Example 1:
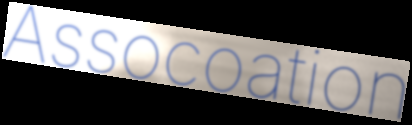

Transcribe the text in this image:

Assocoation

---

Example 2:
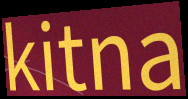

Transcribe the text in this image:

kitna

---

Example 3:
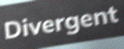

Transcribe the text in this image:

Divergent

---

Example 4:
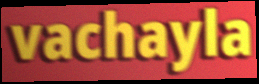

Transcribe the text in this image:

vachayla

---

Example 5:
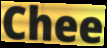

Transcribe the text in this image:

Chee